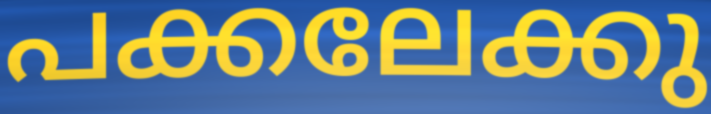
പക്കലേക്കു